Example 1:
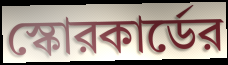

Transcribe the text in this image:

স্কোরকার্ডের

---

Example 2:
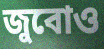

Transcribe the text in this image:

জুবোও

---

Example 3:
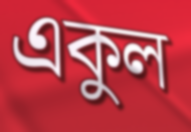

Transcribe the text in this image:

একুল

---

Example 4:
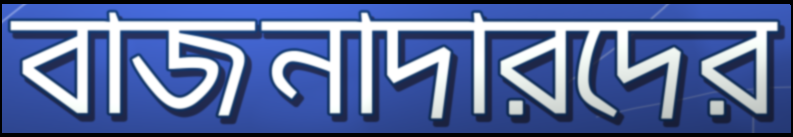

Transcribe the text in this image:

বাজনাদারদের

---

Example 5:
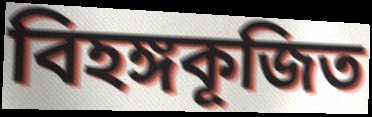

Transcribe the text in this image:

বিহঙ্গকূজিত